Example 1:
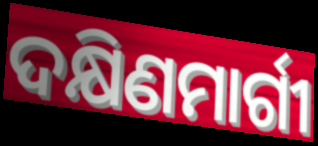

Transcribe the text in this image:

ଦକ୍ଷିଣମାର୍ଗୀ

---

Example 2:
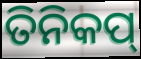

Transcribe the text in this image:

ତିନିକପ୍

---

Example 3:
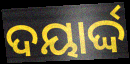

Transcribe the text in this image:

ଦୟାର୍ଦ୍ଦ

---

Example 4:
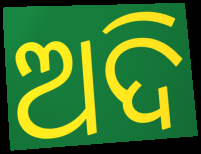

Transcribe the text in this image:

ଅଦି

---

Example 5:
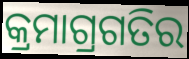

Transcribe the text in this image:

କ୍ରମାଗ୍ରଗତିର